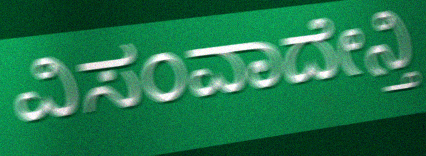
ವಿಸಂವಾದೇನ್ತಿ